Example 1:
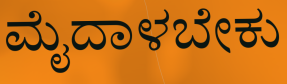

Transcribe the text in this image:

ಮೈದಾಳಬೇಕು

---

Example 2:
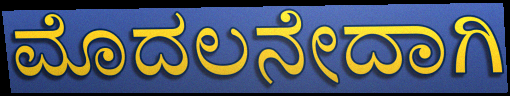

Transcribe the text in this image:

ಮೊದಲನೇದಾಗಿ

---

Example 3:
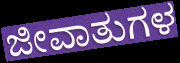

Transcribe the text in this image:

ಜೀವಾತುಗಳ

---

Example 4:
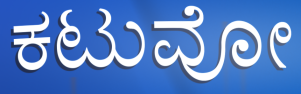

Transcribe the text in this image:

ಕಟುವೋ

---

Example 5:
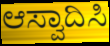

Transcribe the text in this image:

ಆಸ್ವಾದಿಸಿ